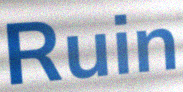
Ruin